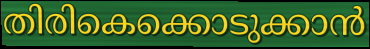
തിരികെക്കൊടുക്കാൻ